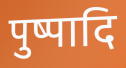
पुष्पादि